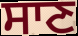
ਸਾਣ